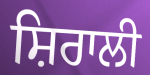
ਸ਼ਿਰਾਲੀ